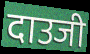
दाउजी